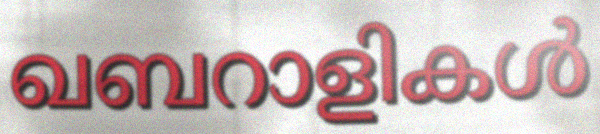
ഖബറാളികൾ